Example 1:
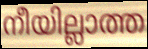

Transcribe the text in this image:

നീയില്ലാത്ത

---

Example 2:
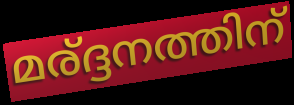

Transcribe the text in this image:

മര്ദ്ദനത്തിന്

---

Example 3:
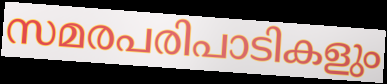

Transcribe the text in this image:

സമരപരിപാടികളും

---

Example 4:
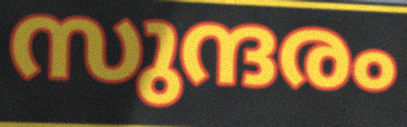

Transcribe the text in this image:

സുന്ദരം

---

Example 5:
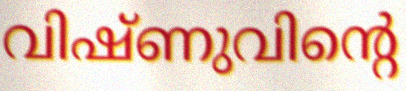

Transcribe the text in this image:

വിഷ്ണുവിന്റെ